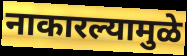
नाकारल्यामुळे